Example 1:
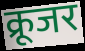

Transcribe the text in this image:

क्रूजर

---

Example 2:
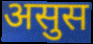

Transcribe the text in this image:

असुस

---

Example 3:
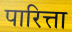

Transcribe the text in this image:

पारित्ता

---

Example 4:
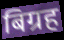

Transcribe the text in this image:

बिग्रह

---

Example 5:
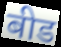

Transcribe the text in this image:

बीड